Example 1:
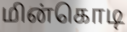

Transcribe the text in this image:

மின்கொடி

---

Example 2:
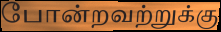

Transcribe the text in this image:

போன்றவற்றுக்கு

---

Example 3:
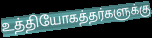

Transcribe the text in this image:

உத்தியோகத்தர்களுக்கு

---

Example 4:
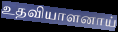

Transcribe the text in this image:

உதவியாளனாய்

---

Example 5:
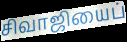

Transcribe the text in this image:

சிவாஜியைப்